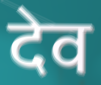
देव